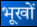
भूखों